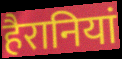
हैरानियां